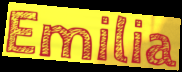
Emilia